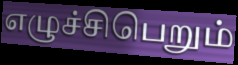
எழுச்சிபெறும்